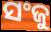
ସଂଜୁ